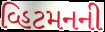
વ્હિટમનની